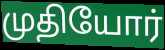
முதியோர்